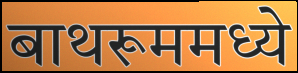
बाथरूममध्ये